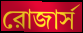
রোজার্স